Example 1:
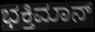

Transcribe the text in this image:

ಭಕ್ತಿಮಾನ್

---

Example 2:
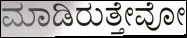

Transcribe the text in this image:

ಮಾಡಿರುತ್ತೇವೋ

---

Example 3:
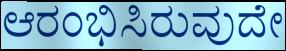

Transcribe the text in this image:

ಆರಂಭಿಸಿರುವುದೇ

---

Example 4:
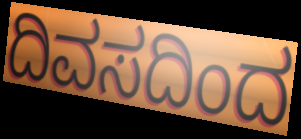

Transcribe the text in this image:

ದಿವಸದಿಂದ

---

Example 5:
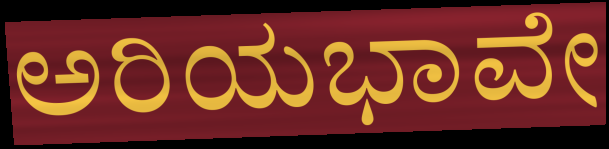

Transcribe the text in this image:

ಅರಿಯಭಾವೇ